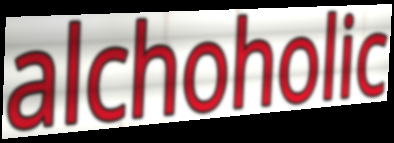
alchoholic